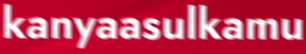
kanyaasulkamu